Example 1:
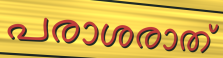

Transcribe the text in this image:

പരാശരാത്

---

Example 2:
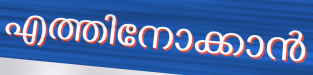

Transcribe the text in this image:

എത്തിനോക്കാൻ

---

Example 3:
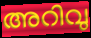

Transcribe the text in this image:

അറിവു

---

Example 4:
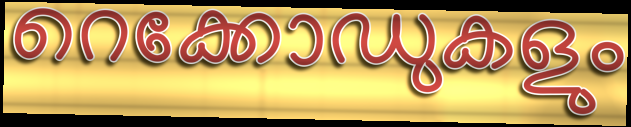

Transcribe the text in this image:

റെക്കോഡുകളും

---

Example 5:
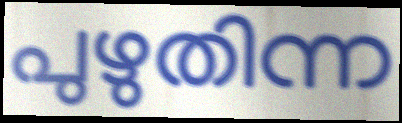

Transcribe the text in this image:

പുഴുതിന്ന